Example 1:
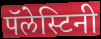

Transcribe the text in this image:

पॅलेस्टिनी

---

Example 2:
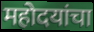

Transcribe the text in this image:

महोदयांचा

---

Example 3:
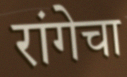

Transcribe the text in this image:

रांगेचा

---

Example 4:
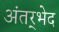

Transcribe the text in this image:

अंतर्भेद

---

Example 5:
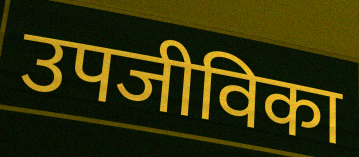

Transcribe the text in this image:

उपजीविका